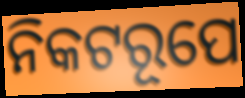
ନିକଟରୂପେ